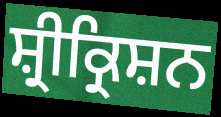
ਸ਼੍ਰੀਕ੍ਰਿਸ਼ਨ